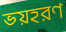
ভয়হরণ